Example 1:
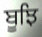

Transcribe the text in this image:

ਬੂਝਿ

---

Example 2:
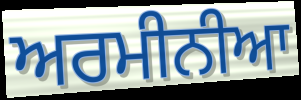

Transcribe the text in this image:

ਅਰਮੀਨੀਆ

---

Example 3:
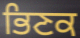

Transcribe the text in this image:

ਭਿਣਕ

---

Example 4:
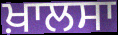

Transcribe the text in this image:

ਖ਼ਾਲਸਾ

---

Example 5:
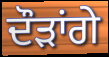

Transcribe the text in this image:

ਦੌੜਾਂਗੇ